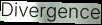
Divergence